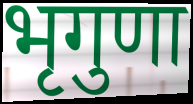
भृगुणा